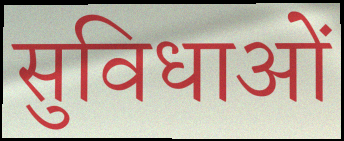
सुविधाओें